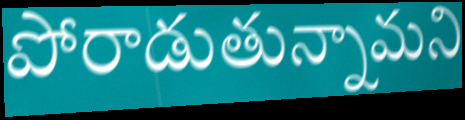
పోరాడుతున్నామని